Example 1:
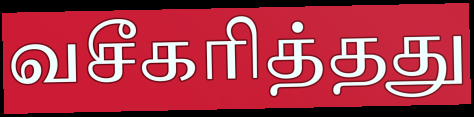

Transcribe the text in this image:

வசீகரித்தது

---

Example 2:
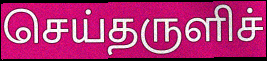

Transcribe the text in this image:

செய்தருளிச்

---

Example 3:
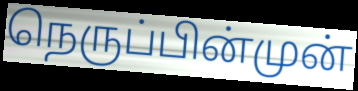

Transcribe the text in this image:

நெருப்பின்முன்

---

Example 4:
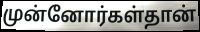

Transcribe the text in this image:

முன்னோர்கள்தான்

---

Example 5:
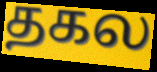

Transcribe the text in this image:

தகல